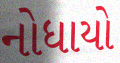
નોધાયો